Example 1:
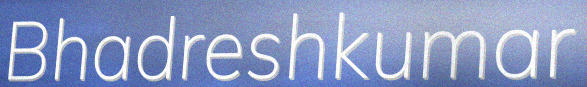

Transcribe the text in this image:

Bhadreshkumar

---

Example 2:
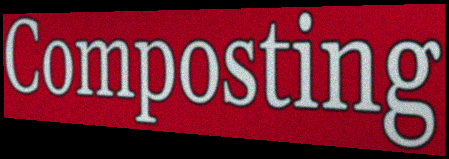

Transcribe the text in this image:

Composting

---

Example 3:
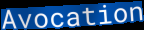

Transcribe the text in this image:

Avocation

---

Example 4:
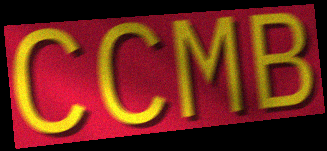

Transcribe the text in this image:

CCMB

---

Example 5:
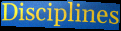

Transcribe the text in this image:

Disciplines